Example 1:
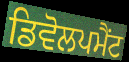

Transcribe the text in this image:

ਡਿਵੋਲਪਮੈਂਟ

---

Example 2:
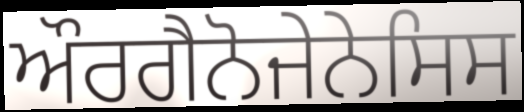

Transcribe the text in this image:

ਔਰਗੈਨੋਜੇਨੇਸਿਸ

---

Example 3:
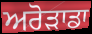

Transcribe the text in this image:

ਅਰੋੜਾਡਾ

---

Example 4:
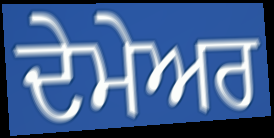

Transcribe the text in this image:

ਦੇਮੇਅਰ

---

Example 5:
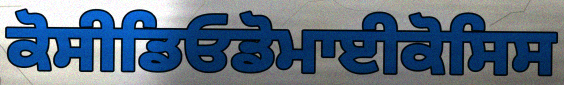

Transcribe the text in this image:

ਕੋਸੀਡਿਓਡੋਮਾਈਕੋਸਿਸ